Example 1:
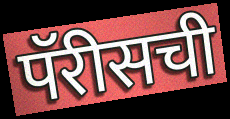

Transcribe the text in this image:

पॅरीसची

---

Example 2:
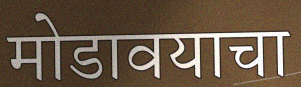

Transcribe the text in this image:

मोडावयाचा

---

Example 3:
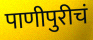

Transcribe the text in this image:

पाणीपुरीचं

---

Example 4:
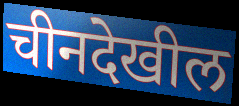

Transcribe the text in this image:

चीनदेखील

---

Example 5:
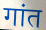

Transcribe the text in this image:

गांत